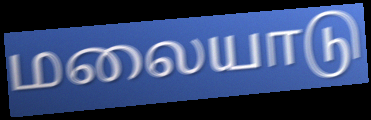
மலையாடு